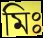
মিঃ